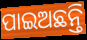
ପାଇଅଛନ୍ତି